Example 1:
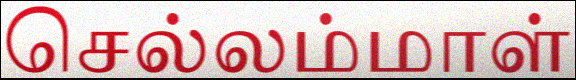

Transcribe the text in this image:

செல்லம்மாள்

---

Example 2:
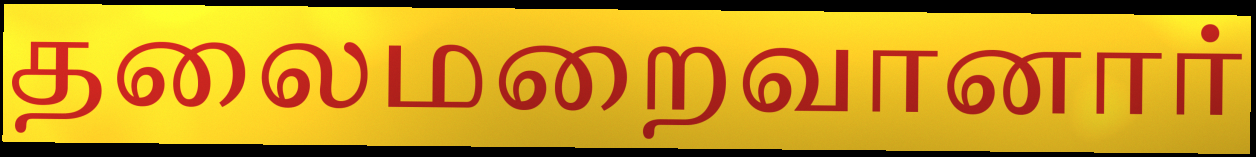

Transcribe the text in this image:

தலைமறைவானார்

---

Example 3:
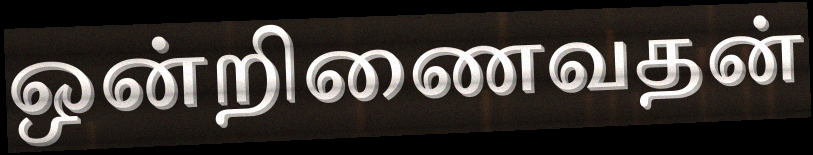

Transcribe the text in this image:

ஒன்றிணைவதன்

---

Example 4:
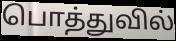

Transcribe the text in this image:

பொத்துவில்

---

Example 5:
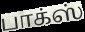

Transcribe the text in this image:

பாக்ஸ்